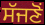
ਸੱਜਣੋਂ